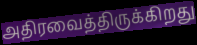
அதிரவைத்திருக்கிறது